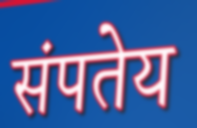
संपतेय